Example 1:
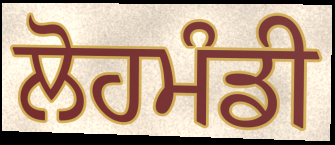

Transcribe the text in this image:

ਲੋਹਮੰਡੀ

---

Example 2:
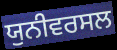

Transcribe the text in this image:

ਯੁਨੀਵਰਸਲ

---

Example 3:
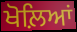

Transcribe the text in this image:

ਖੋਲ਼ਿਆਂ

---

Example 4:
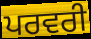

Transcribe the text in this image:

ਪਰਵਰੀ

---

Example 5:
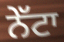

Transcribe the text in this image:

ਨੇੱਟਾ